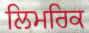
ਲਿਮਰਿਕ